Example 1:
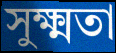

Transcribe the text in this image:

সুক্ষ্মতা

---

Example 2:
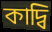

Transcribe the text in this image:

কাদ্বি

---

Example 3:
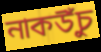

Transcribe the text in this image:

নাকউঁচু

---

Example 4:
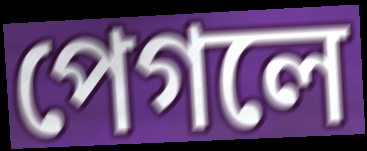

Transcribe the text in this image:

পেগলে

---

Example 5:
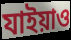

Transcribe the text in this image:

যাইয়াও